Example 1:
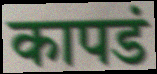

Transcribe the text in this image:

कापडं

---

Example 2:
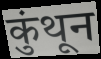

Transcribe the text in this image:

कुंथून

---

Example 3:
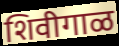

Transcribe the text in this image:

शिवीगाळ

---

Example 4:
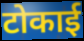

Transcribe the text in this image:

टोकाई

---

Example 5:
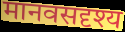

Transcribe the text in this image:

मानवसदृश्य